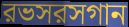
রভসরসগান